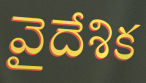
వైదేశిక